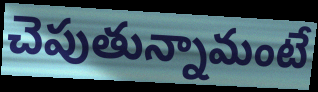
చెపుతున్నామంటే